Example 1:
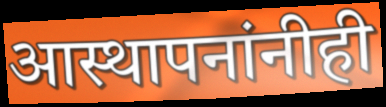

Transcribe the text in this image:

आस्थापनांनीही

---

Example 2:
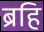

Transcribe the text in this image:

ब्रहि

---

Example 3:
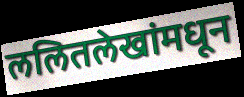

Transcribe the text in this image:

ललितलेखांमधून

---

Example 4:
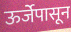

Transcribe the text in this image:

ऊर्जेपासून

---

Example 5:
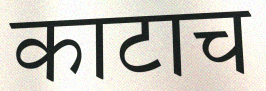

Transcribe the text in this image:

काटाच